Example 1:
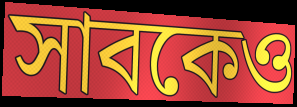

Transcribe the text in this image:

সাবকেও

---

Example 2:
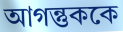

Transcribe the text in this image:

আগন্তুককে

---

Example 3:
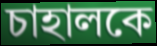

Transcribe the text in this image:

চাহালকে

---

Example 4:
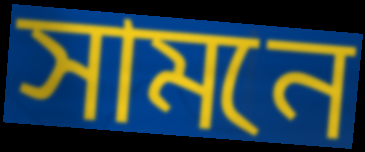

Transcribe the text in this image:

সামনে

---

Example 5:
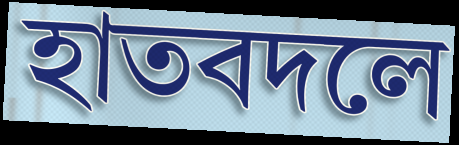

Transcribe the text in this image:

হাতবদলে